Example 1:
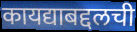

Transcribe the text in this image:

कायद्याबद्दलची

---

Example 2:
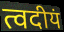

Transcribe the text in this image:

त्वदीयं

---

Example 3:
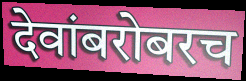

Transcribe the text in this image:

देवांबरोबरच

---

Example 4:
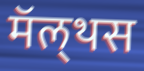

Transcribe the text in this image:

मॅल्थस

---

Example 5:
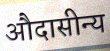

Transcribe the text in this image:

औदासीन्य